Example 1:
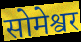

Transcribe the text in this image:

सोमेश्वर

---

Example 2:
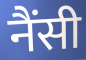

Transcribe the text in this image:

नैंसी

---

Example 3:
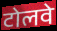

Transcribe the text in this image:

टोलवे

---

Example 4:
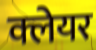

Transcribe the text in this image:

क्‍लेयर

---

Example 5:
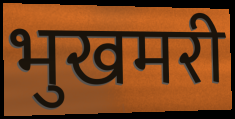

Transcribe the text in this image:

भुखमरी